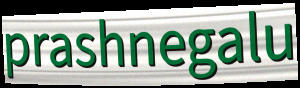
prashnegalu